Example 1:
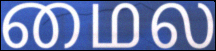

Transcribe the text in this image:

மைல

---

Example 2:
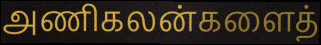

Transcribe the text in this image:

அணிகலன்களைத்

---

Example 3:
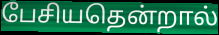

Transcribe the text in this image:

பேசியதென்றால்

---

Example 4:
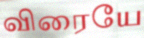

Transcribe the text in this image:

விரையே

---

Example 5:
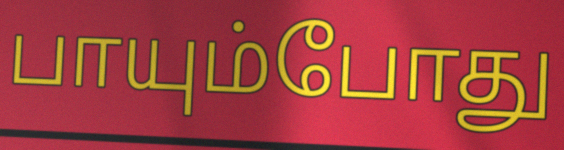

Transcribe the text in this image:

பாயும்போது